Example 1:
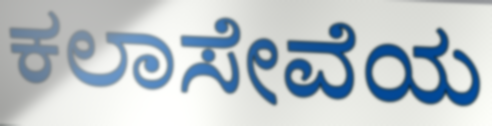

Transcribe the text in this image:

ಕಲಾಸೇವೆಯ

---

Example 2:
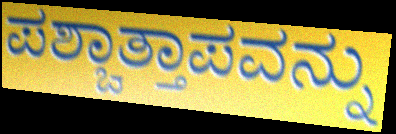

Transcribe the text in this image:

ಪಶ್ಚಾತ್ತಾಪವನ್ನು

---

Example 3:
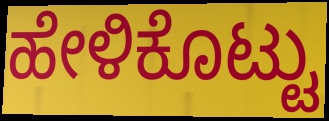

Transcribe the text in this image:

ಹೇಳಿಕೊಟ್ಟು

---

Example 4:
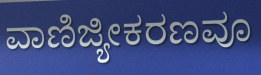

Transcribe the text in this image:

ವಾಣಿಜ್ಯೀಕರಣವೂ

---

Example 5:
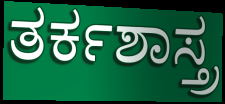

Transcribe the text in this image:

ತರ್ಕಶಾಸ್ತ್ರ